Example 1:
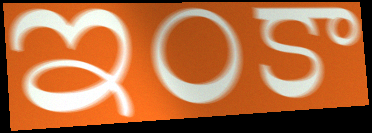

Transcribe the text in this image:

ఇంకా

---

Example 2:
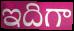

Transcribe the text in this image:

ఇదిగా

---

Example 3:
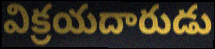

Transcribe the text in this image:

విక్రయదారుడు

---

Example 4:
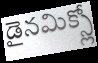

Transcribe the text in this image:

డైనమిక్స్లో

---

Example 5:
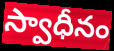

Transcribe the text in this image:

స్వాధీనం